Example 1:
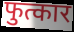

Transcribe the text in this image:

फुत्कार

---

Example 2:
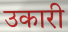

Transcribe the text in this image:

उकारी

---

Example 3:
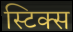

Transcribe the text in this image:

स्टिक्स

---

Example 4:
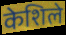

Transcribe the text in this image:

केशिले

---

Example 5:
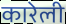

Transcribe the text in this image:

कारेली